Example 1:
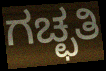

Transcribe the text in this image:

ಗಚ್ಛತಿ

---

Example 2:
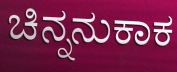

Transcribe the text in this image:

ಚಿನ್ನನುಕಾಕ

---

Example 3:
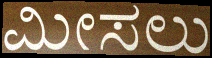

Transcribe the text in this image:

ಮೀಸಲು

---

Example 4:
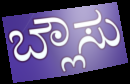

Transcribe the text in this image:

ಬ್ಲೌಸು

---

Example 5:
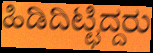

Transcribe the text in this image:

ಹಿಡಿದಿಟ್ಟಿದ್ದರು